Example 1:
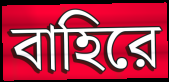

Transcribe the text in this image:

বাহিরে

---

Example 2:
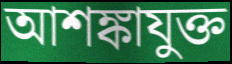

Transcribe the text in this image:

আশঙ্কাযুক্ত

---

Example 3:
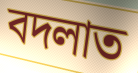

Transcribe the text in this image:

বদলাত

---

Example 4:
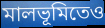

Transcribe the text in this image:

মালভূমিতেও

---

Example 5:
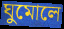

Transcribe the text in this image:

ঘুমোলে